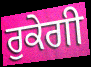
ਰੁਕੇਗੀ